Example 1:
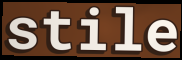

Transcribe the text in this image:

stile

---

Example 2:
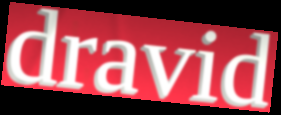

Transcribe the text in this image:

dravid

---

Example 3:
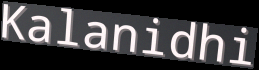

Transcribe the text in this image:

Kalanidhi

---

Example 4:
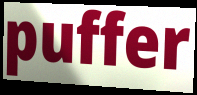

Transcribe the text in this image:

puffer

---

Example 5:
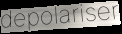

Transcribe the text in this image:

depolariser